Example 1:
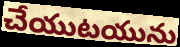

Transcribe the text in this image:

చేయుటయును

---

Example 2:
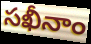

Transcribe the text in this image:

సఖీనాం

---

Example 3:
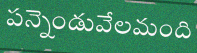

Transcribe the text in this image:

పన్నెండువేలమంది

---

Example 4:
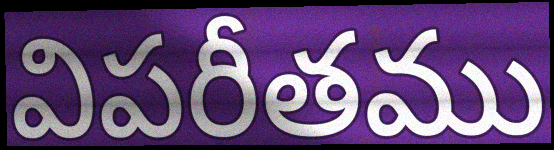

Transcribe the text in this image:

విపరీతము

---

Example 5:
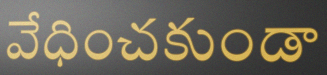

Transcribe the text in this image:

వేధించకుండా